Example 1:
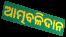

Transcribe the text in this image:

ଆତ୍ମବଳିଦାନ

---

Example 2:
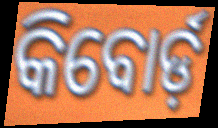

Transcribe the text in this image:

କିବୋର୍ଡ଼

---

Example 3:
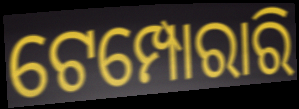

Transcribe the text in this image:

ଟେମ୍ପୋରାରି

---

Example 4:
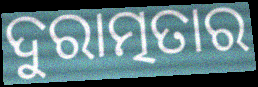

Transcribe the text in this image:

ଦୁରାତ୍ମତାର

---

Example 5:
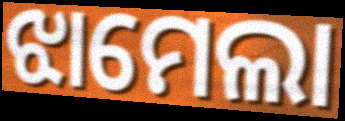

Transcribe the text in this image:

ଝାମେଲା